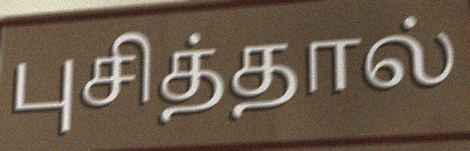
புசித்தால்